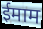
ईमाम